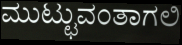
ಮುಟ್ಟುವಂತಾಗಲಿ